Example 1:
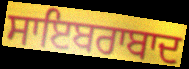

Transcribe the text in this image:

ਸਾਇਬਰਾਬਾਦ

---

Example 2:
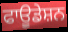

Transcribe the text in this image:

ਫਾਊਡੇਸ਼ਨ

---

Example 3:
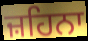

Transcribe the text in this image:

ਜ਼ਹਿਨਾ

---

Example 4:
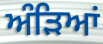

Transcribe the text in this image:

ਅੰੜਿਆਂ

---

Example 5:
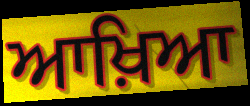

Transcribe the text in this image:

ਆਖ਼ਿਆ